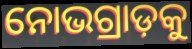
ନୋଭଗ୍ରାଡ଼କୁ